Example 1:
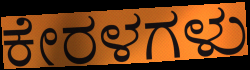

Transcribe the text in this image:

ಕೇರಳಗಳು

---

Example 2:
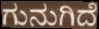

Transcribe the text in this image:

ಗುನುಗಿದೆ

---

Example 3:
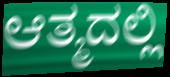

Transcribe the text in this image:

ಆತ್ಮದಲ್ಲಿ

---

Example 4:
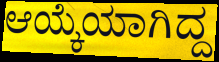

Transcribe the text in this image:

ಆಯ್ಕೆಯಾಗಿದ್ದ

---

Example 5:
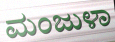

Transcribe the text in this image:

ಮಂಜುಳಾ